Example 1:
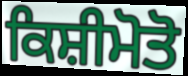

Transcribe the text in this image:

ਕਿਸ਼ੀਮੋਤੋ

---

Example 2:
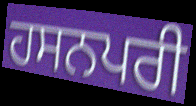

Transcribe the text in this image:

ਹਸਨਪਰੀ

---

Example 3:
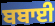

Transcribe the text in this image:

ਬਬਾਈ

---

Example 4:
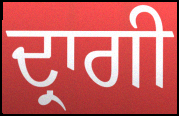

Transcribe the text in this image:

ਦ੍ਰਾਗੀ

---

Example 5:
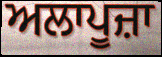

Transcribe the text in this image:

ਅਲਾਪੂਜ਼ਾ